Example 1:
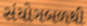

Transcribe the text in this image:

સંયોગબળથી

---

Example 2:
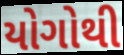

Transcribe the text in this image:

યોગોથી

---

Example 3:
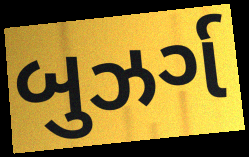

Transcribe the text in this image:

બુઝર્ગ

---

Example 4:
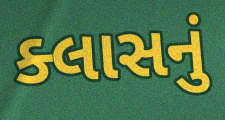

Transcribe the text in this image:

ક્લાસનું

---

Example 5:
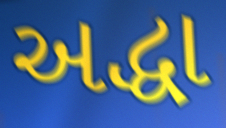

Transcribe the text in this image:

અદ્ધા